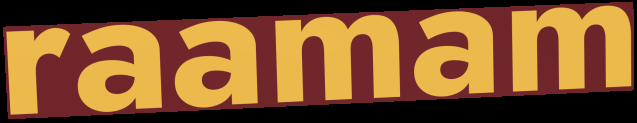
raamam